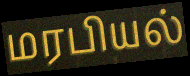
மரபியல்